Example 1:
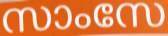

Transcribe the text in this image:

സാംസേ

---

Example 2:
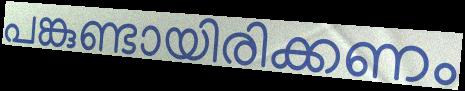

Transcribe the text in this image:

പങ്കുണ്ടായിരിക്കണം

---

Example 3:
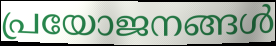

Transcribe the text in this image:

പ്രയോജനങ്ങൾ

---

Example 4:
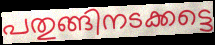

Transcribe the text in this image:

പതുങ്ങിനടക്കട്ടെ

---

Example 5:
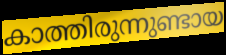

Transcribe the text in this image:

കാത്തിരുന്നുണ്ടായ